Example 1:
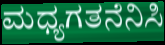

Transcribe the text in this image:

ಮಧ್ಯಗತನೆನಿಸಿ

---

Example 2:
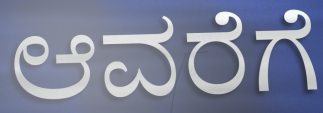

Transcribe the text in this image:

ಆವರೆಗೆ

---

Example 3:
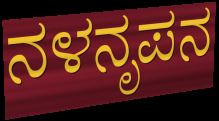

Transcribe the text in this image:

ನಳನೃಪನ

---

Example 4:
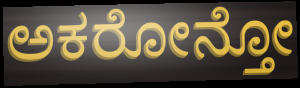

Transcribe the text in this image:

ಅಕರೋನ್ತೋ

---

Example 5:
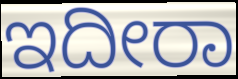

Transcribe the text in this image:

ಇದೀರಾ